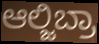
ಆಲ್ಜಿಬ್ರಾ